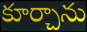
కూర్చాను